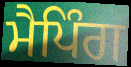
ਮੈਪਿੰਗ